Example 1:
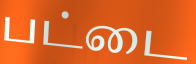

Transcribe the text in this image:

பட்டை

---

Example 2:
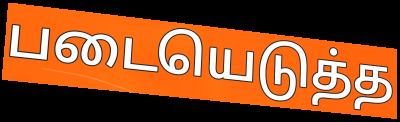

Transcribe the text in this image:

படையெடுத்த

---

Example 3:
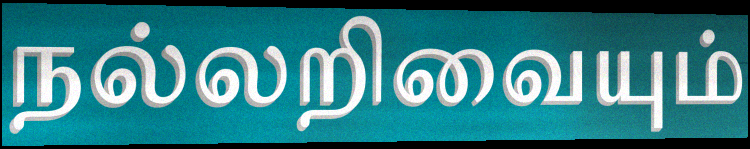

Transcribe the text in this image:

நல்லறிவையும்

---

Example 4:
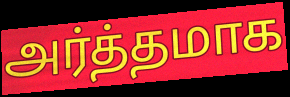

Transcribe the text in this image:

அர்த்தமாக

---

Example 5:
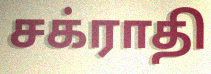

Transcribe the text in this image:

சக்ராதி